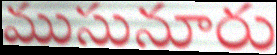
ముసునూరు